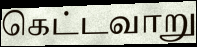
கெட்டவாறு